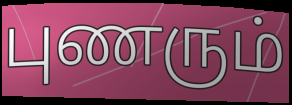
புணரும்